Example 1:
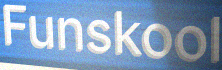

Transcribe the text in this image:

Funskool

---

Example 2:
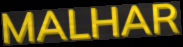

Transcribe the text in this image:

MALHAR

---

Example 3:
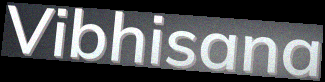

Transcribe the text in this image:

Vibhisana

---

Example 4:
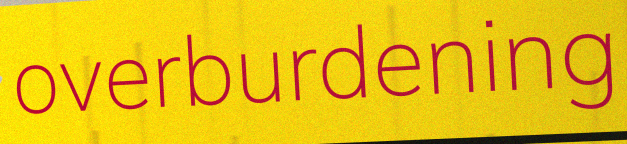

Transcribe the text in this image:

overburdening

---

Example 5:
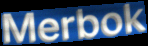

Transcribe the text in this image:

Merbok